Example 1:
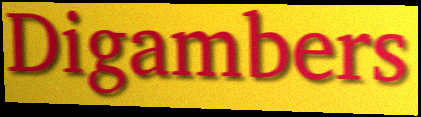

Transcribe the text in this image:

Digambers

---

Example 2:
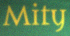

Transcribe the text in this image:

Mity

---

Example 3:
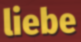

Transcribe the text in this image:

liebe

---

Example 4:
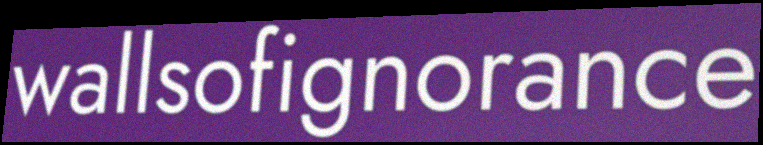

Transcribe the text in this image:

wallsofignorance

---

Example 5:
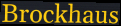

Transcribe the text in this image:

Brockhaus